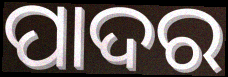
ପାଦର